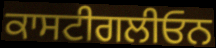
ਕਾਸਟੀਗਲੀਓਨ